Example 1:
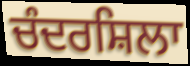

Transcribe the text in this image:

ਚੰਦਰਸ਼ਿਲਾ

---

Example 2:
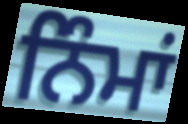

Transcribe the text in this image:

ਨਿੰਮਾਂ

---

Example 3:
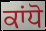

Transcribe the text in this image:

ਕਾਂਧੋ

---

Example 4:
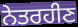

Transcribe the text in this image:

ਨੇਤਰਹੀਣ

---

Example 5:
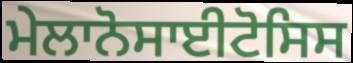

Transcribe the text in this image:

ਮੇਲਾਨੋਸਾਈਟੋਸਿਸ